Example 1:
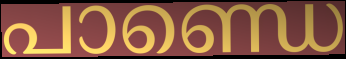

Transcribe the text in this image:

പാണ്ഡെ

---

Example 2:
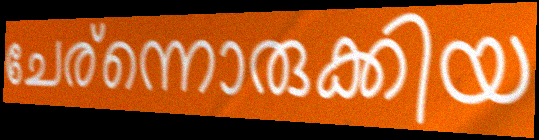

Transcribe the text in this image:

ചേര്ന്നൊരുക്കിയ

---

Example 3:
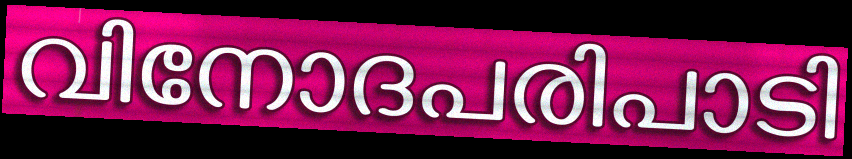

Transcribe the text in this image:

വിനോദപരിപാടി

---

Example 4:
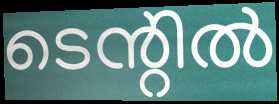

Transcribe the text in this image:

ടെന്റിൽ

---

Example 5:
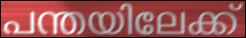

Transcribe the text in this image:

പന്തയിലേക്ക്